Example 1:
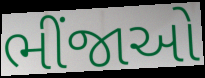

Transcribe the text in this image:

ભીંજાઓ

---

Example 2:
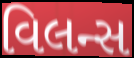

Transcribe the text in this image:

વિલન્સ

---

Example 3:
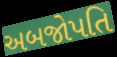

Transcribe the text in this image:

અબજોપતિ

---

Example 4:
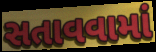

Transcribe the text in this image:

સતાવવામાં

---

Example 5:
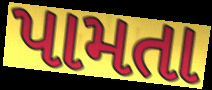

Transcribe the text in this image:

પામતા